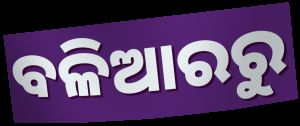
ବଳିଆରରୁ